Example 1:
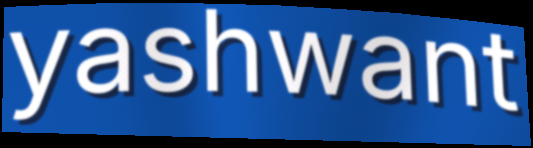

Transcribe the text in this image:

yashwant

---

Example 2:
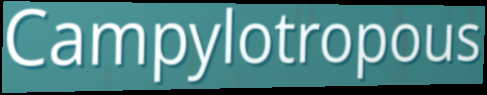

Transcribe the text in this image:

Campylotropous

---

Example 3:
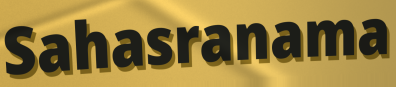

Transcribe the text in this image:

Sahasranama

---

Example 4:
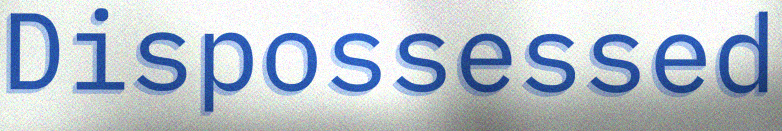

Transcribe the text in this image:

Dispossessed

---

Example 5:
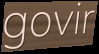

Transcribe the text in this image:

govir